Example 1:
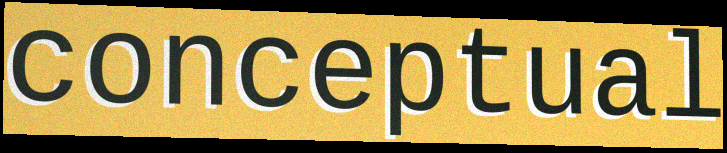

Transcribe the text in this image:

conceptual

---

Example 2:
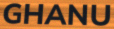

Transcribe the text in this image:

GHANU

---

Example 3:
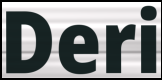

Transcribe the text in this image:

Deri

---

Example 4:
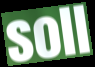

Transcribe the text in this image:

soll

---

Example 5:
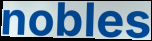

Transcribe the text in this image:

nobles